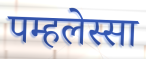
पम्हलेस्सा